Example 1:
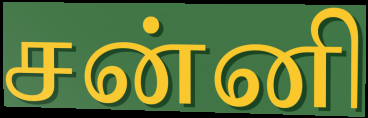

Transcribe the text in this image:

சன்னி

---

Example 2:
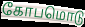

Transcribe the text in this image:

கோபமொடு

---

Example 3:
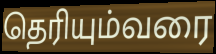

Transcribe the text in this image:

தெரியும்வரை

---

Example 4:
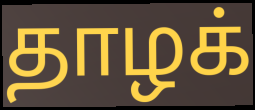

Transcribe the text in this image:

தாழக்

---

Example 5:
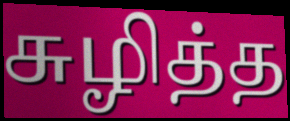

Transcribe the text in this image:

சுழித்த